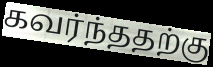
கவர்ந்ததற்கு